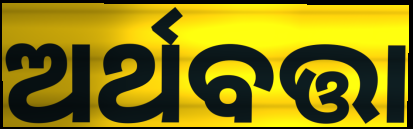
ଅର୍ଥବତ୍ତା